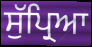
ਸੁੱਪ੍ਰਿਆ